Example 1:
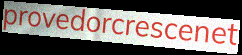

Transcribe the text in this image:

provedorcrescenet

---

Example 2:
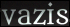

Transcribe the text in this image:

vazis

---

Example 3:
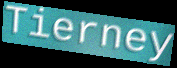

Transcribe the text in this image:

Tierney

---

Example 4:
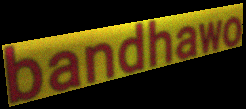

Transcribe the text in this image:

bandhawo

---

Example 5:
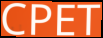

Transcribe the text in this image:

CPET